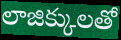
లాజిక్కులతో